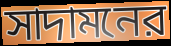
সাদামনের